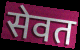
सेवत